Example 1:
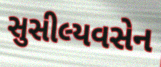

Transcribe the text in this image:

સુસીલ્યવસેન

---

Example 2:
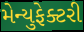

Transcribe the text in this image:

મેન્યુફેક્ટરી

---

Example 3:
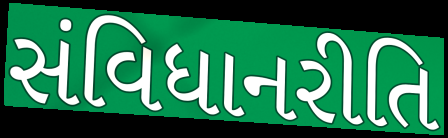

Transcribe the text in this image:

સંવિધાનરીતિ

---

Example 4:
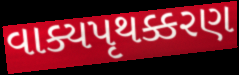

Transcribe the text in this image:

વાક્યપૃથક્કરણ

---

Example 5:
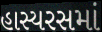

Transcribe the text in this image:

હાસ્યરસમાં